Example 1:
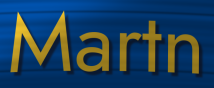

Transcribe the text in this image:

Martn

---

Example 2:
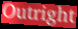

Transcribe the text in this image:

Outright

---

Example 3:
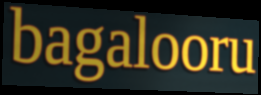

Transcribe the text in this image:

bagalooru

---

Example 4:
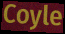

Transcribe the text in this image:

Coyle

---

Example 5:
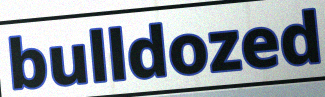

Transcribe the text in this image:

bulldozed